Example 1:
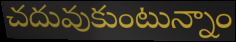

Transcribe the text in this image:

చదువుకుంటున్నాం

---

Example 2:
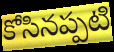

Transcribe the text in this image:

కోసినప్పటి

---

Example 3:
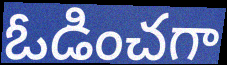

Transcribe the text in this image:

ఓడించగా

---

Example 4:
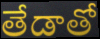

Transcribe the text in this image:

తేడాతో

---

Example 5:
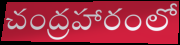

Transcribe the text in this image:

చంద్రహారంలో